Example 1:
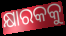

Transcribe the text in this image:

କ୍ଷାରକକୁ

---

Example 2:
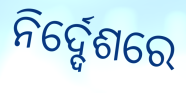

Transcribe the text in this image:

ନିର୍ଦ୍ଦେଶରେ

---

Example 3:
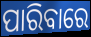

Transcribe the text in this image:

ପାରିବାରେ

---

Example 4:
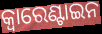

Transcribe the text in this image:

କ୍ୱାରେଣ୍ଟାଇନ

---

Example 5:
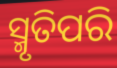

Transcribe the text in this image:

ସ୍ମୃତିପରି